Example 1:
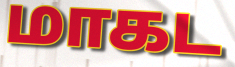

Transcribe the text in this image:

மாகட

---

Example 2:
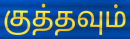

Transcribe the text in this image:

குத்தவும்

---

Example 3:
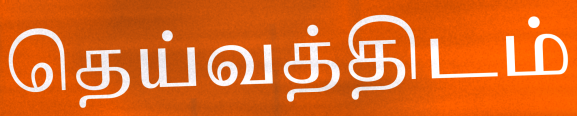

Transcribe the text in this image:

தெய்வத்திடம்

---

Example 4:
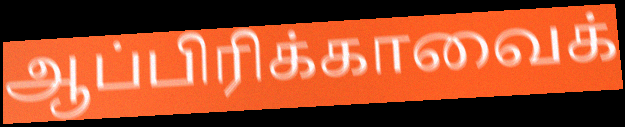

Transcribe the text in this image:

ஆப்பிரிக்காவைக்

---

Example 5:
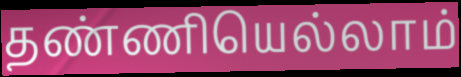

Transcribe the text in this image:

தண்ணியெல்லாம்